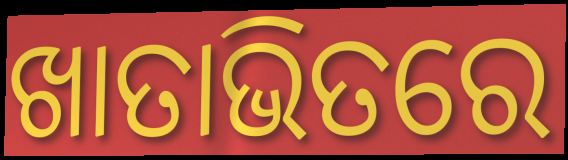
ଖାତାଭିତରେ